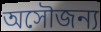
অসৌজন্য